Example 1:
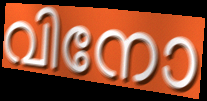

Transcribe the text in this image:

വിനോ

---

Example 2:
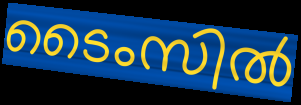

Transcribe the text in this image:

ടൈംസിൽ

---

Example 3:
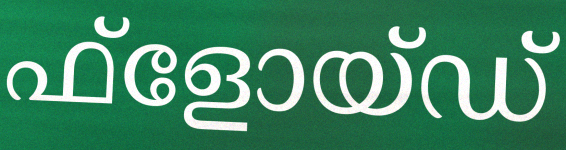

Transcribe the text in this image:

ഫ്ളോയ്ഡ്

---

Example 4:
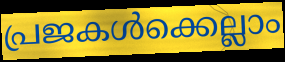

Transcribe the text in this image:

പ്രജകൾക്കെല്ലാം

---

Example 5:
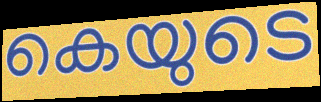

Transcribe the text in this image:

കെയുടെ